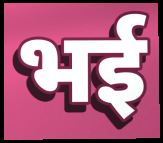
भई